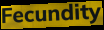
Fecundity